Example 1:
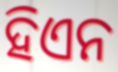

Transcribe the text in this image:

ହିଏନ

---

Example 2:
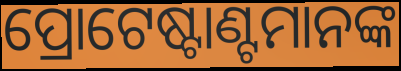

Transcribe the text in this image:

ପ୍ରୋଟେଷ୍ଟାଣ୍ଟମାନଙ୍କ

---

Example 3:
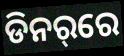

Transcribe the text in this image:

ଡିନର୍‌ରେ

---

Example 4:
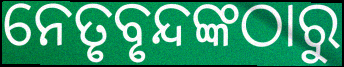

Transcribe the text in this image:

ନେତୃବୃନ୍ଦଙ୍କଠାରୁ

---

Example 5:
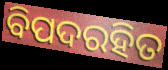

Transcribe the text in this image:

ବିପଦରହିତ